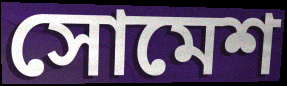
সোমেশ